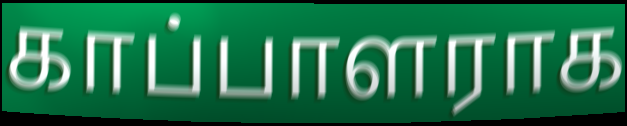
காப்பாளராக